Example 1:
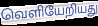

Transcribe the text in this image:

வெளியேறியது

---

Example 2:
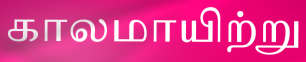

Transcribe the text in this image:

காலமாயிற்று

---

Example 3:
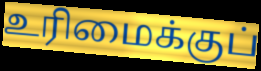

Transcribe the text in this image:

உரிமைக்குப்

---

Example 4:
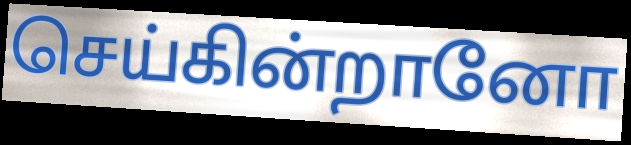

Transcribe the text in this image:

செய்கின்றானோ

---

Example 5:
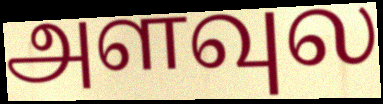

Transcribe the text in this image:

அளவுல